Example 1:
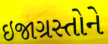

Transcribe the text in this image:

ઇજાગ્રસ્તોને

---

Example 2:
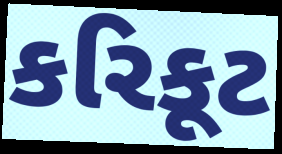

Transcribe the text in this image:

કરિકૂટ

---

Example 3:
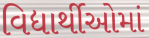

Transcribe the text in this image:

વિદ્યાર્થીઓમાં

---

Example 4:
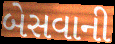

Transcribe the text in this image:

બેસવાની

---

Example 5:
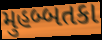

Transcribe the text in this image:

મુહબ્બતકા